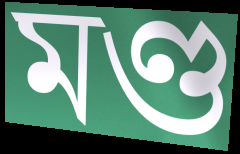
মণ্ড